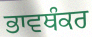
ਭਾਵਥੰਕਰ